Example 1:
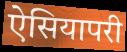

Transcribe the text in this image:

ऐसियापरी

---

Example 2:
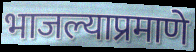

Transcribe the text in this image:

भाजल्याप्रमाणे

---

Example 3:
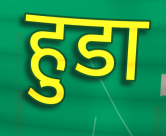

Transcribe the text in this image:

हुडा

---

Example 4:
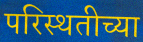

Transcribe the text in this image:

परिस्थतीच्या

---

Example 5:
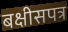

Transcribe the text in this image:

बक्षीसपत्र